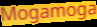
Mogamoga